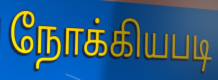
நோக்கியபடி